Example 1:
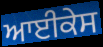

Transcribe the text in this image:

ਆਈਕੇਸ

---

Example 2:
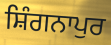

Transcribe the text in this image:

ਸ਼ਿੰਗਨਾਪੁਰ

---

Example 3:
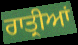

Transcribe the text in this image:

ਰਾਤ੍ਰੀਆਂ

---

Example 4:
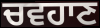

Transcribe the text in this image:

ਚਵਹਾਣ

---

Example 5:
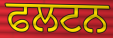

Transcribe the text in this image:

ਫਲਟਨ